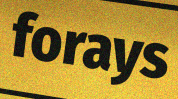
forays